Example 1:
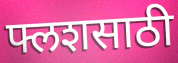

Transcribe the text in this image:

फ्लशसाठी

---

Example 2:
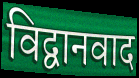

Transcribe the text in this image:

विद्वानवाद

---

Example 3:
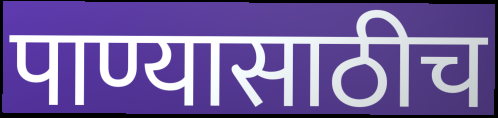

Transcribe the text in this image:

पाण्यासाठीच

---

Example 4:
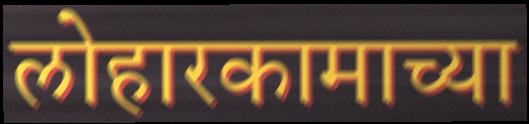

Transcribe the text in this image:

लोहारकामाच्या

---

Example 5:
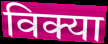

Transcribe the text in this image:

विक्या